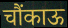
चौंकाऊ